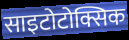
साइटोटोक्सिक